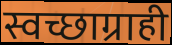
स्वच्छाग्राही